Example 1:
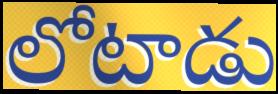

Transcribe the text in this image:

లోటాడు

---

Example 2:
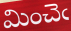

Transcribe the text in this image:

మించెఁ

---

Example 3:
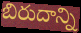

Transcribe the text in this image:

బిరుదాన్ని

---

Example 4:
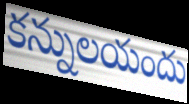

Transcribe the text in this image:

కన్నులయందు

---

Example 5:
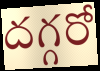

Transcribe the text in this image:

దగ్గరో